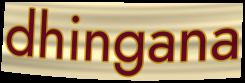
dhingana